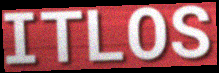
ITLOS